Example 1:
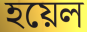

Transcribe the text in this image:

হয়েল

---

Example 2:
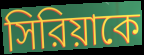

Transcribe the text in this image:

সিরিয়াকে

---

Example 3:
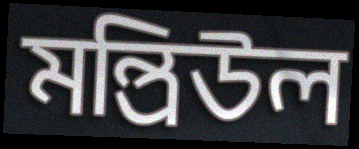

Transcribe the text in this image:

মন্ত্রিউল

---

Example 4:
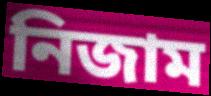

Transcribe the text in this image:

নিজাম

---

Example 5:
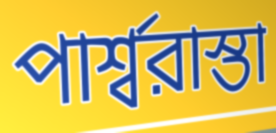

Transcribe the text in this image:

পার্শ্বরাস্তা